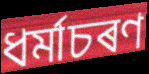
ধৰ্মাচৰণ